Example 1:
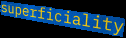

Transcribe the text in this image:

superficiality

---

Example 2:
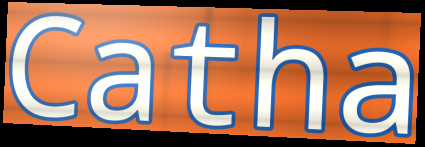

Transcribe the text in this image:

Catha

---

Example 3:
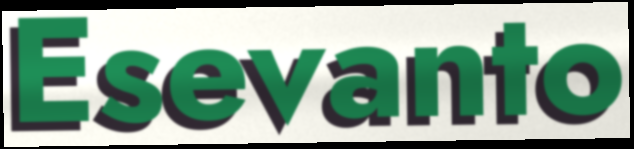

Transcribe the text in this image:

Esevanto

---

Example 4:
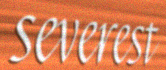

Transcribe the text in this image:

severest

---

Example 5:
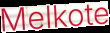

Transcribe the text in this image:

Melkote